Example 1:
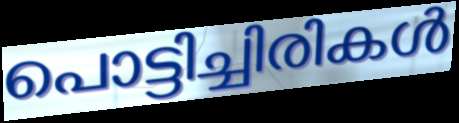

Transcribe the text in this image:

പൊട്ടിച്ചിരികൾ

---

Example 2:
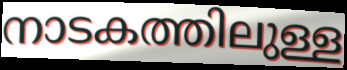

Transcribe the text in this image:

നാടകത്തിലുള്ള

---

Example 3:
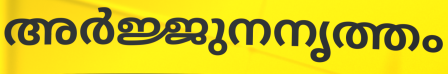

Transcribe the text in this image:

അർജ്ജുനനൃത്തം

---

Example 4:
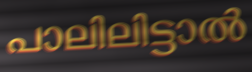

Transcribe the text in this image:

പാലിലിട്ടാൽ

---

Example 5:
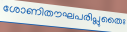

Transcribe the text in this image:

ശോണിതൗഘപരിപ്ലുതൈഃ